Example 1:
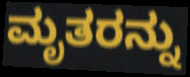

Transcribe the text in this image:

ಮೃತರನ್ನು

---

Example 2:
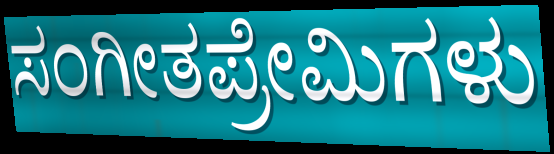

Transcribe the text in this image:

ಸಂಗೀತಪ್ರೇಮಿಗಳು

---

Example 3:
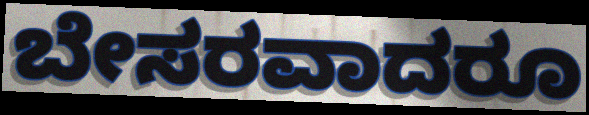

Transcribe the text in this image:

ಬೇಸರವಾದರೂ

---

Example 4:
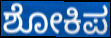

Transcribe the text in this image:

ಶೋಕಿಪ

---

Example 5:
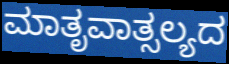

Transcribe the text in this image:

ಮಾತೃವಾತ್ಸಲ್ಯದ